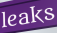
leaks